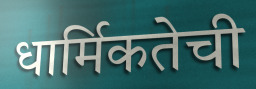
धार्मिकतेची